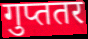
गुप्ततर